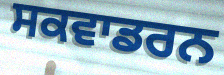
ਸਕਵਾਡਰਨ